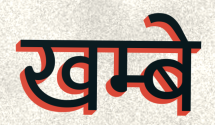
खम्बे